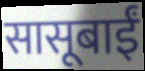
सासूबाईं